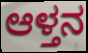
ಆಳ್ತನ